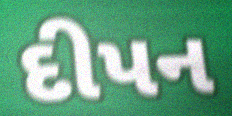
દીપન